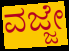
ವಜ್ಜೇ